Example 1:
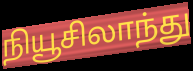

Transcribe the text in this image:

நியூசிலாந்து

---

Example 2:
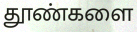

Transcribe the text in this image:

தூண்களை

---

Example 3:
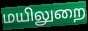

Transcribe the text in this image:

மயிலுறை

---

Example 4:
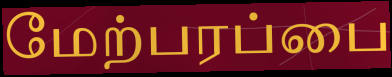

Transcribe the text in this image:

மேற்பரப்பை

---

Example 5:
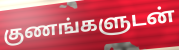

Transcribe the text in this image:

குணங்களுடன்